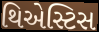
થિએસ્ટિસ